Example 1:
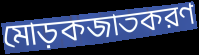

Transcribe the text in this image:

মোড়কজাতকরণ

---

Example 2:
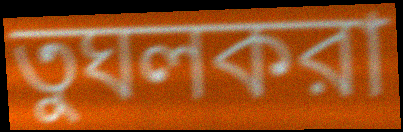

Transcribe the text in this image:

তুঘলকরা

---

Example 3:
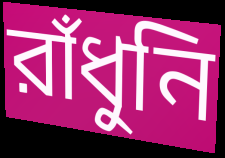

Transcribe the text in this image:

রাঁধুনি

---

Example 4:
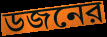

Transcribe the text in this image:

ডজনের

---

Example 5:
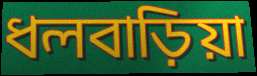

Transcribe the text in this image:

ধলবাড়িয়া